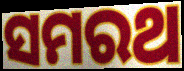
ସମରଥ